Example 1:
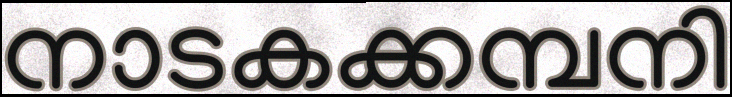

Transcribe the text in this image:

നാടകക്കമ്പനി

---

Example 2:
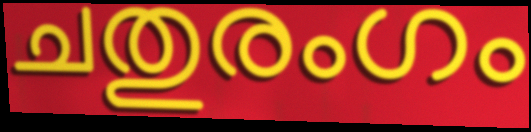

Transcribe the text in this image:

ചതുരംഗം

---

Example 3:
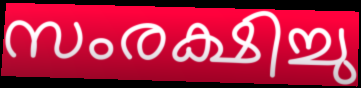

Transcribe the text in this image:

സംരക്ഷിച്ചു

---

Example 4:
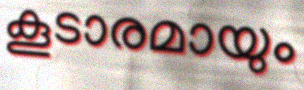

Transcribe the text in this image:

കൂടാരമായും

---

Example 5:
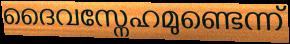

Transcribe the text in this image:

ദൈവസ്നേഹമുണ്ടെന്ന്